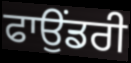
ਫਾਉਂਡਰੀ